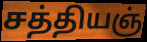
சத்தியஞ்